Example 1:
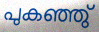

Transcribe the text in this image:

പുകഞ്ഞു്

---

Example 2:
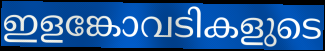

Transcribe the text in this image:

ഇളങ്കോവടികളുടെ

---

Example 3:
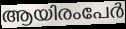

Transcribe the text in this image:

ആയിരംപേർ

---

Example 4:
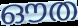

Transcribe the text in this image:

ഔത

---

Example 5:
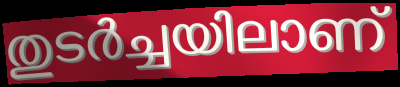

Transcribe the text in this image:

തുടർച്ചയിലാണ്